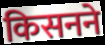
किसनने